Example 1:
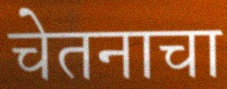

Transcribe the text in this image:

चेतनाचा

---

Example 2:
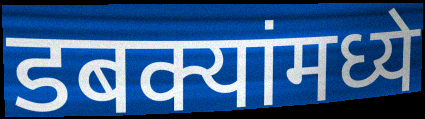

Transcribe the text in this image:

डबक्यांमध्ये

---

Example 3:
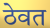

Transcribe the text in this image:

ठेवत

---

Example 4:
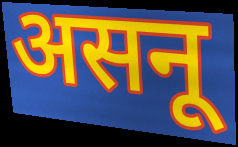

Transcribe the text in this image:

असनू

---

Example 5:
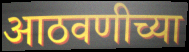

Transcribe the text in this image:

आठवणीच्या